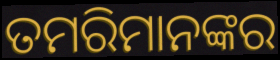
ତମରିମାନଙ୍କର